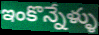
ఇంకొన్నేళ్ళు